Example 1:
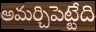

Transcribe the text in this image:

అమర్చిపెట్టేది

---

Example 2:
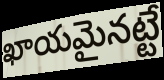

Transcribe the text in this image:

ఖాయమైనట్టే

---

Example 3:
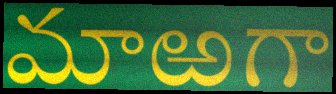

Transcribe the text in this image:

మాఱగా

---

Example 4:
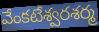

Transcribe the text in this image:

వేంకటేశ్వరశర్మ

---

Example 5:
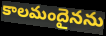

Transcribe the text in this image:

కాలమందైనను